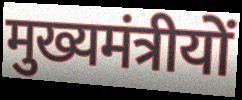
मुख्यमंत्रीयों